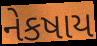
નેકષાય